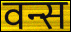
वन्स